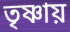
তৃষ্ণায়